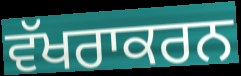
ਵੱਖਰਾਕਰਨ